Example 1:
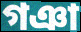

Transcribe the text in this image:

গঞা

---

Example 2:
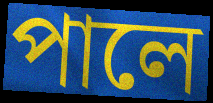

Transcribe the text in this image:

পালে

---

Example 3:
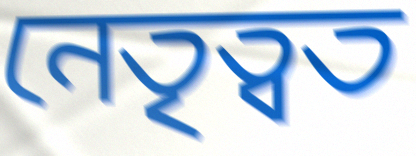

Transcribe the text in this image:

নেতৃত্বত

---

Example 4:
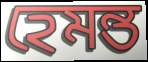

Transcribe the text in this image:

হেমন্ত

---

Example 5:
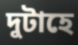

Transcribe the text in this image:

দুটাহে